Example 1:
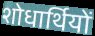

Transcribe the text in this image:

शोधार्थियों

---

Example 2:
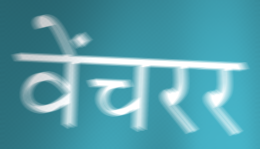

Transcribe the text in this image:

वेंचरर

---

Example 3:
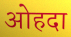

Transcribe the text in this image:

ओहदा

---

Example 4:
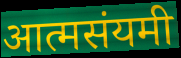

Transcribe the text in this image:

आत्मसंयमी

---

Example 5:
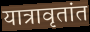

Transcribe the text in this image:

यात्रावृतांत